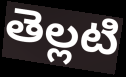
తెల్లటి